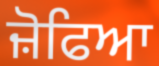
ਜ਼ੋਫਿਆ